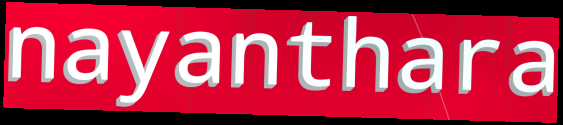
nayanthara